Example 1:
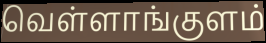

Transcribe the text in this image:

வெள்ளாங்குளம்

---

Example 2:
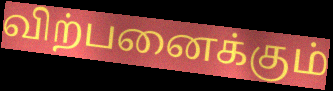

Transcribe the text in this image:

விற்பனைக்கும்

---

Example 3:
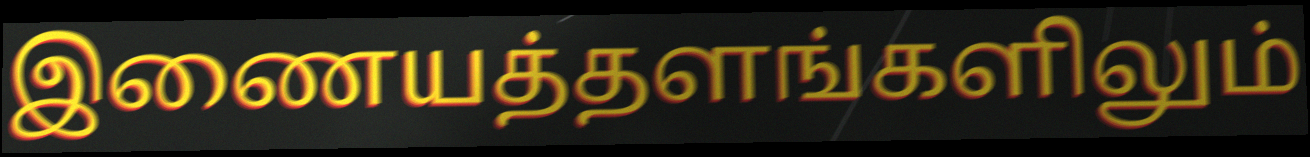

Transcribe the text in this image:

இணையத்தளங்களிலும்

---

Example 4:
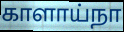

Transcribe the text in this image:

காளாய்நா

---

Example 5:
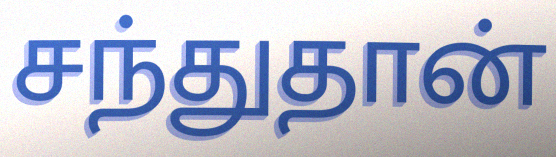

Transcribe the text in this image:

சந்துதான்